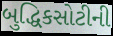
બુદ્ધિકસોટીની